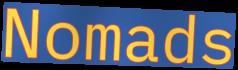
Nomads